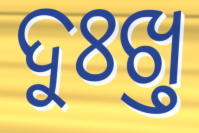
ଦୁଃଖ୍ତ